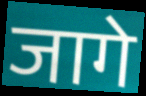
जागे